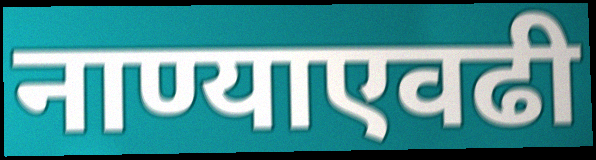
नाण्याएवढी